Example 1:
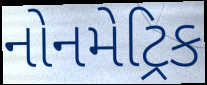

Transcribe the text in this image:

નોનમેટ્રિક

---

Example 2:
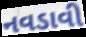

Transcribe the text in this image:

નવડાવી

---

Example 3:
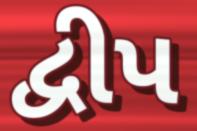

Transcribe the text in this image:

દ્વીપ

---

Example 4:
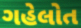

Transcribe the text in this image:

ગહેલોત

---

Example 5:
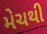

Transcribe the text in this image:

મેચથી